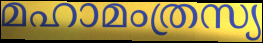
മഹാമംത്രസ്യ